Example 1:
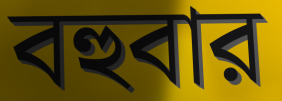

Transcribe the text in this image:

বহুবার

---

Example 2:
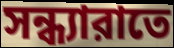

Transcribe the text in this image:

সন্ধ্যারাতে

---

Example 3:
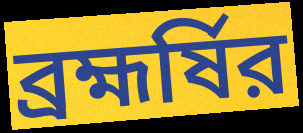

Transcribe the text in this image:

ব্রহ্মর্ষির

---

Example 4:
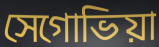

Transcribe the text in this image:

সেগোভিয়া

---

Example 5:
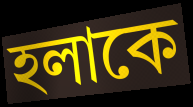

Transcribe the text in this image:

হলাকে